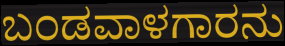
ಬಂಡವಾಳಗಾರನು